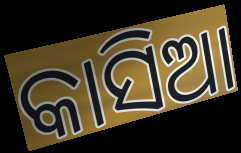
କାସିଆ